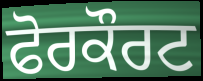
ਫੋਰਕੌਰਟ